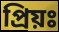
প্রিয়ঃ